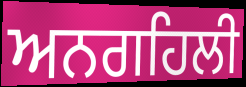
ਅਨਗਹਿਲੀ